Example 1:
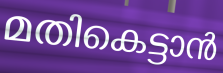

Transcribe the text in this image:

മതികെട്ടാൻ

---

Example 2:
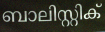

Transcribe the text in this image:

ബാലിസ്റ്റിക്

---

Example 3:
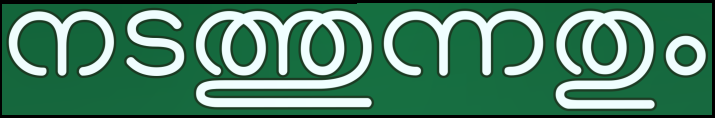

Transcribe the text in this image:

നടത്തുന്നതും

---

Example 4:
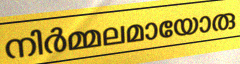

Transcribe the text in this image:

നിർമ്മലമായോരു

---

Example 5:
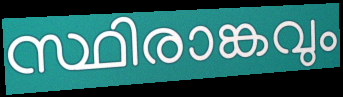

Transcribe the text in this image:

സ്ഥിരാങ്കവും